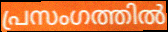
പ്രസംഗത്തിൽ